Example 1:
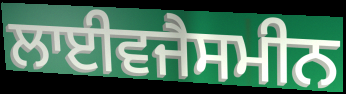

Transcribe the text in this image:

ਲਾਈਵਜੈਸਮੀਨ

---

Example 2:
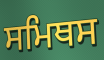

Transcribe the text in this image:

ਸਮਿਥਸ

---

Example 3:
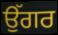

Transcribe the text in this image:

ਉੱਗਰ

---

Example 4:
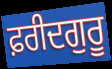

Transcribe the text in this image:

ਫ਼ਰੀਦਗੁਰੂ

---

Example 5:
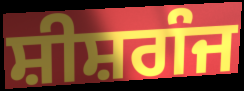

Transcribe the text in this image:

ਸ਼ੀਸ਼ਗੰਜ